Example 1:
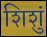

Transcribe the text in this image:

शिशुं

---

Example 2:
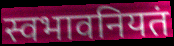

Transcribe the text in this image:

स्वभावनियतं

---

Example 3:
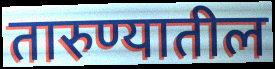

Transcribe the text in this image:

तारुण्यातील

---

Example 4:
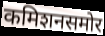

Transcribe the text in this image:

कमिशनसमोर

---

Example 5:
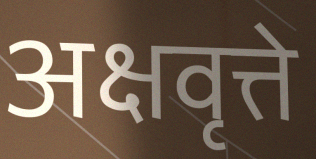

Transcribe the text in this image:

अक्षवृत्ते